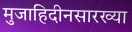
मुजाहिदीनसारख्या